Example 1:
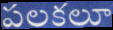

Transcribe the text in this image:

పలకలూ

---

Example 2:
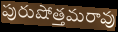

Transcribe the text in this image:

పురుషోత్తమరావు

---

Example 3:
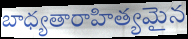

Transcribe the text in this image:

బాధ్యతారాహిత్యమైన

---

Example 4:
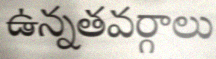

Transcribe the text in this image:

ఉన్నతవర్గాలు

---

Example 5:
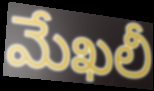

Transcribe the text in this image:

మేఖలీ